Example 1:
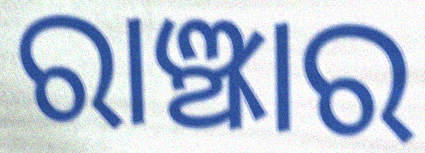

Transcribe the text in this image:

ରାଞ୍ଝାର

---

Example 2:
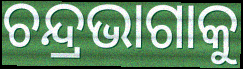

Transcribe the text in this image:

ଚନ୍ଦ୍ରଭାଗାକୁ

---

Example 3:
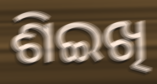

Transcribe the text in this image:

ଶିଇଖି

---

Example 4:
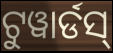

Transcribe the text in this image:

ଟୁୱାର୍ଡସ୍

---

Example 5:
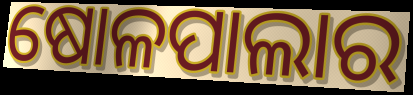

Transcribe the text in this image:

ଷୋଳପାଲାର